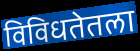
विविधतेतला